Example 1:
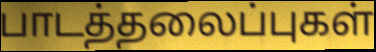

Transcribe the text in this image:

பாடத்தலைப்புகள்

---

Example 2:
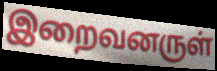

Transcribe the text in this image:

இறைவனருள்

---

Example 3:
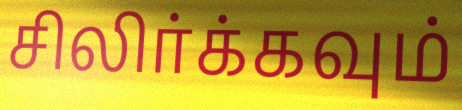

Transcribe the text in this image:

சிலிர்க்கவும்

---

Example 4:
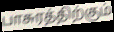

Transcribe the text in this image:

பாசுரத்திற்கும்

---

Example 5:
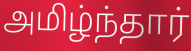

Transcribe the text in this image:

அமிழ்ந்தார்